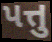
પત્તુ